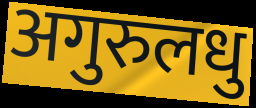
अगुरुलधु